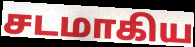
சடமாகிய